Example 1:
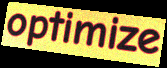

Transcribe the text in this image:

optimize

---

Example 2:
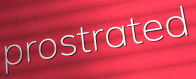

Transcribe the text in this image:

prostrated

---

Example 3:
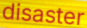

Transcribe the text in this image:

disaster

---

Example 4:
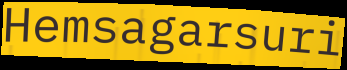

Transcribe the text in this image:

Hemsagarsuri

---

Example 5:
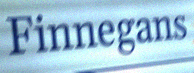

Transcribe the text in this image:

Finnegans